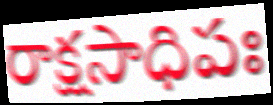
రాక్షసాధిపః